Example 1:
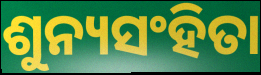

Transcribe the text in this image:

ଶୁନ୍ୟସଂହିତା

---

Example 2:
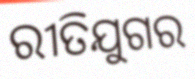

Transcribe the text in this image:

ରୀତିଯୁଗର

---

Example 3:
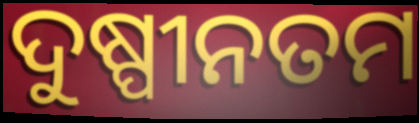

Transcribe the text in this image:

ଦୁଷ୍ପୀନତମ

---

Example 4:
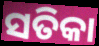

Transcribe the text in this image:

ସତିକା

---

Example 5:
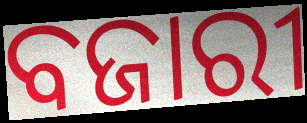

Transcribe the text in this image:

ବଜାରୀ